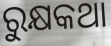
ରୁକ୍ଷକଥା